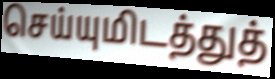
செய்யுமிடத்துத்